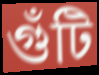
গুঁটি